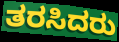
ತರಸಿದರು